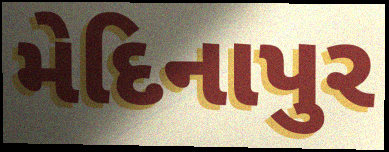
મેદિનાપુર